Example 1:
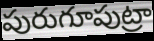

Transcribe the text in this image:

పురుగూపుట్రా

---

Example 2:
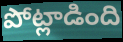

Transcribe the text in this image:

పోట్లాడింది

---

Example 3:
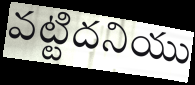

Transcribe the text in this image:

వట్టిదనియు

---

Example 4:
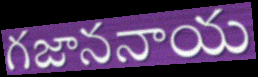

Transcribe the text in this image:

గజాననాయ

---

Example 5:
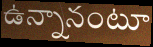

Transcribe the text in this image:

ఉన్నానంటూ